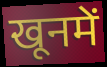
खूनमें